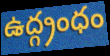
ఉద్గ్రంధం